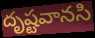
దృష్టవానసి